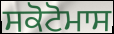
ਸਕੋਟੋਮਾਸ